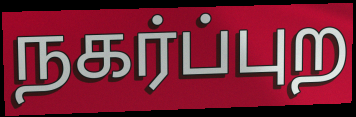
நகர்ப்புற